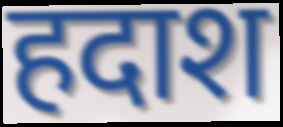
हदाश